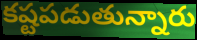
కష్టపడుతున్నారు